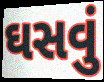
ઘસવું